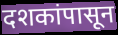
दशकांपासून